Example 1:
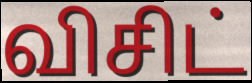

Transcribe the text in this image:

விசிட்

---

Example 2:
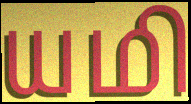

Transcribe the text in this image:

யமி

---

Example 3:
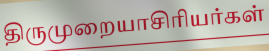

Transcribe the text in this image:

திருமுறையாசிரியர்கள்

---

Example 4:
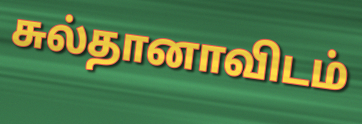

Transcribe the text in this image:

சுல்தானாவிடம்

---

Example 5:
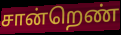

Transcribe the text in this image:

சான்றெண்